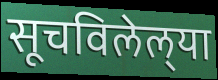
सूचविलेल्या